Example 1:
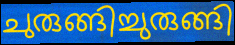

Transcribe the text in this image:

ചുരുങ്ങിച്ചുരുങ്ങി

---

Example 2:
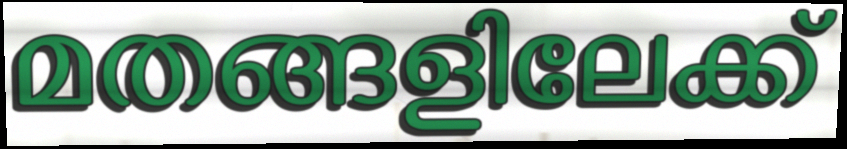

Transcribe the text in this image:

മതങ്ങളിലേക്ക്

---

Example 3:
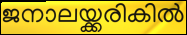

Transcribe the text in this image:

ജനാലയ്ക്കരികിൽ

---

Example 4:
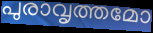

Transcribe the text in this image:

പുരാവൃത്തമോ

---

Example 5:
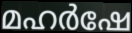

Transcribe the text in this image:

മഹർഷേ